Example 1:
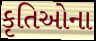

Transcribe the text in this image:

કૃતિઓના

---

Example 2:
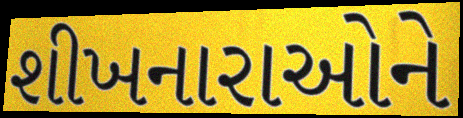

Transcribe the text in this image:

શીખનારાઓને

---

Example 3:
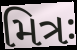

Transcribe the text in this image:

મિત્રઃ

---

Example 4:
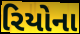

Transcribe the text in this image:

રિયોના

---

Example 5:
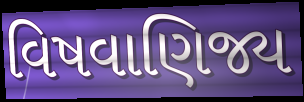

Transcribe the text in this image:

વિષવાણિજ્ય